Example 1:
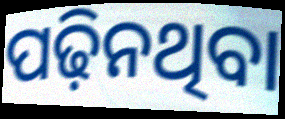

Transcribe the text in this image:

ପଢ଼ିନଥିବା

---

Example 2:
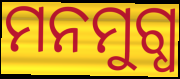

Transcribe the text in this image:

ମନମୁଗ୍ଧ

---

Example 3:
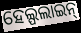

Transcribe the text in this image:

ହେଲ୍ପଲାଇନ୍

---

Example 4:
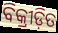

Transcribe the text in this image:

ବିକ୍ରୀଡ଼ିତ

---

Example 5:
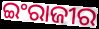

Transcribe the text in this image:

ଇଂରାଜୀର